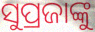
ସୁପ୍ରଜାଙ୍କୁ